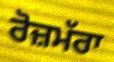
ਰੋਜ਼ਮੱਰਾ